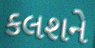
કલશને